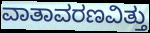
ವಾತಾವರಣವಿತ್ತು